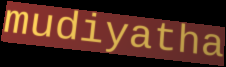
mudiyatha